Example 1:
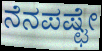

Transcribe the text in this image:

ನೆನಪಷ್ಟೇ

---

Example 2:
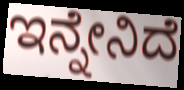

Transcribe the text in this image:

ಇನ್ನೇನಿದೆ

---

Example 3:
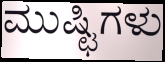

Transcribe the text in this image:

ಮುಷ್ಟಿಗಳು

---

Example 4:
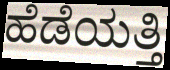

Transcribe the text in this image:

ಹೆಡೆಯತ್ತಿ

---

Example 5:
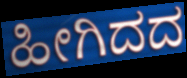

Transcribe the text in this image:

ಹೀಗಿದದ